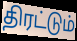
திரட்டும்